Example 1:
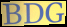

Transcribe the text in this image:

BDG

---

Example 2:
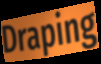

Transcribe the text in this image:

Draping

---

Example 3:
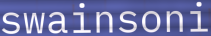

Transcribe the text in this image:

swainsoni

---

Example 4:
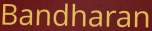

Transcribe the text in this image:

Bandharan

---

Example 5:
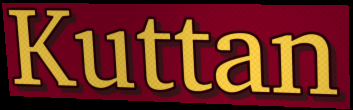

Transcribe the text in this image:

Kuttan